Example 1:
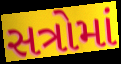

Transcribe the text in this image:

સત્રોમાં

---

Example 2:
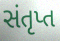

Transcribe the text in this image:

સંતૃપ્ત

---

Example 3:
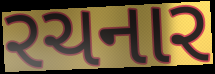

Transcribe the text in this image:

રચનાર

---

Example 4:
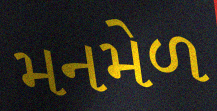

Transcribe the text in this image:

મનમેળ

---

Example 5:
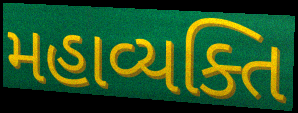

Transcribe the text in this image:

મહાવ્યક્તિ